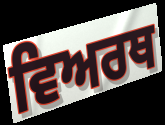
ਵਿਅਰਥ